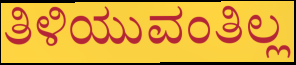
ತಿಳಿಯುವಂತಿಲ್ಲ